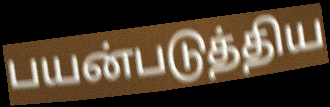
பயன்படுத்திய